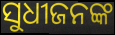
ସୁଧୀଜନଙ୍କ